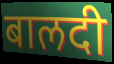
बालदी